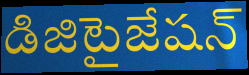
డిజిటైజేషన్